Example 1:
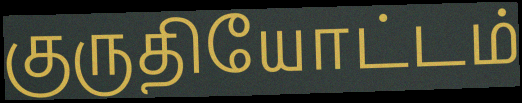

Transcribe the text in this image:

குருதியோட்டம்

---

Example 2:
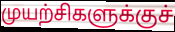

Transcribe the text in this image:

முயற்சிகளுக்குச்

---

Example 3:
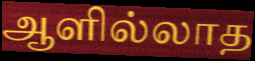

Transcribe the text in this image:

ஆளில்லாத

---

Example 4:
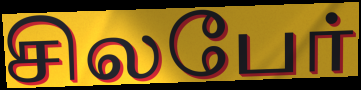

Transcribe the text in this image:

சிலபேர்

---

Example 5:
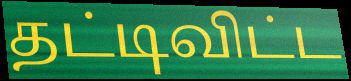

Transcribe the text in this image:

தட்டிவிட்ட